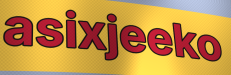
asixjeeko